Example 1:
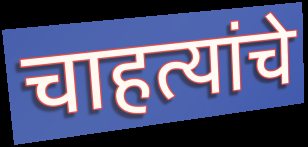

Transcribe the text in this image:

चाहत्यांचे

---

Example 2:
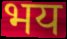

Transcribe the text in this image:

भय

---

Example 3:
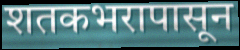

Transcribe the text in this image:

शतकभरापासून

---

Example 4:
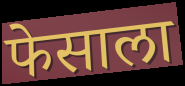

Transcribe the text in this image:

फेसाला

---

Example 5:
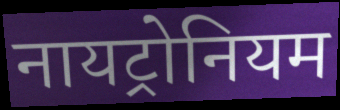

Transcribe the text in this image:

नायट्रोनियम